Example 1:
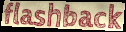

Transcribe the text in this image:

flashback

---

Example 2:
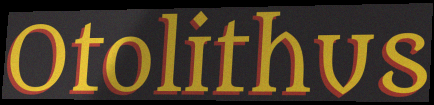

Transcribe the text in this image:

Otolithus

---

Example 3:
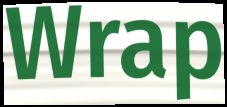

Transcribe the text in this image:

Wrap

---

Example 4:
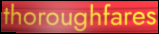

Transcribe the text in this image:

thoroughfares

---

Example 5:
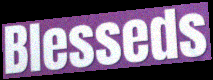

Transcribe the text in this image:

Blesseds